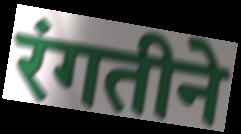
रंगतीने